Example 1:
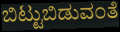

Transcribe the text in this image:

ಬಿಟ್ಟುಬಿಡುವಂತೆ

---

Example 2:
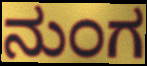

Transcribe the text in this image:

ನುಂಗ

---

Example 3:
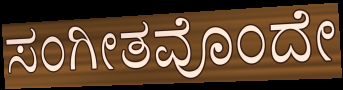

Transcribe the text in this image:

ಸಂಗೀತವೊಂದೇ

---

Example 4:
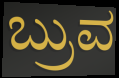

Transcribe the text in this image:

ಬ್ರುವ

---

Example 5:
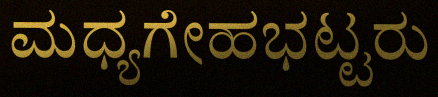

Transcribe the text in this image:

ಮಧ್ಯಗೇಹಭಟ್ಟರು